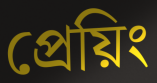
প্রেয়িং